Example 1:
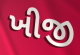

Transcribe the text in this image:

ખીજી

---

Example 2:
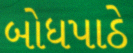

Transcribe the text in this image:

બોધપાઠે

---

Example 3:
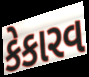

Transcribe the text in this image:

કેકારવ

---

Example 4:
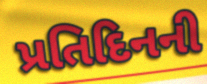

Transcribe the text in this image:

પ્રતિદિનની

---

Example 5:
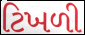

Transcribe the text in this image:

ટિખળી